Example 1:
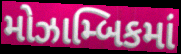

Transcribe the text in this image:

મોઝામ્બિકમાં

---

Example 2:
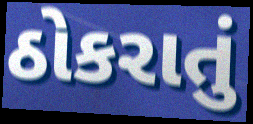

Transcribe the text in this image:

ઠોકરાતું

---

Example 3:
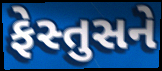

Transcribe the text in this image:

ફેસ્તુસને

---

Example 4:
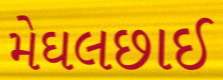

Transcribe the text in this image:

મેઘલછાઈ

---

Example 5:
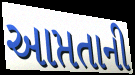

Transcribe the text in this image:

આપ્તતાની